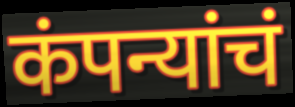
कंपन्यांचं